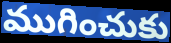
ముగించుకు